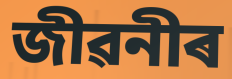
জীৱনীৰ